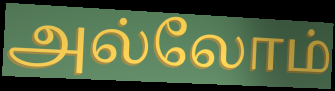
அல்லோம்